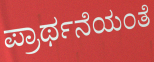
ಪ್ರಾರ್ಥನೆಯಂತೆ